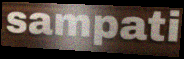
sampati